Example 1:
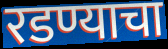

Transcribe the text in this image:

रडण्याचा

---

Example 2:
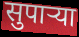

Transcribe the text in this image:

सुपार्‍या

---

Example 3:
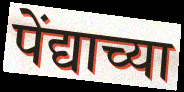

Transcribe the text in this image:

पेंद्याच्या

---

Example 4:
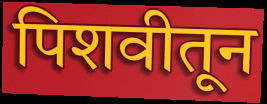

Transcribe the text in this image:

पिशवीतून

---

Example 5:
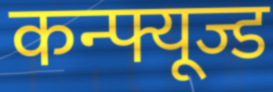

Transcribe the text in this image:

कन्फ्यूज्ड